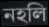
নহলি